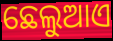
ଛେଲୁଆଏ